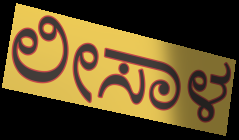
ಲೀಸಾಳ